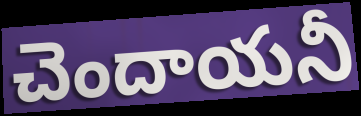
చెందాయనీ